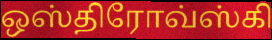
ஒஸ்திரோவ்ஸ்கி